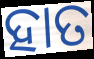
ହାତ